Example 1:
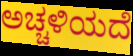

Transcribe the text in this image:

ಅಚ್ಚಳಿಯದೆ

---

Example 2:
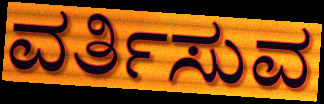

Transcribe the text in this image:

ವರ್ತಿಸುವ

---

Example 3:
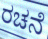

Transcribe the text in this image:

ರಚನೆ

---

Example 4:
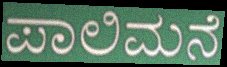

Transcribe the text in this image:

ಪಾಲಿಮನೆ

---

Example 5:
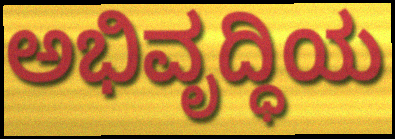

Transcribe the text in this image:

ಅಭಿವೃದ್ಧಿಯ